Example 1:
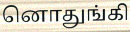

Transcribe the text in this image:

னொதுங்கி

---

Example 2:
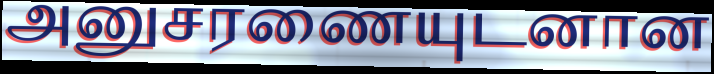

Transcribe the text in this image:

அனுசரணையுடனான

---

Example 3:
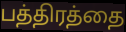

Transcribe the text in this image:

பத்திரத்தை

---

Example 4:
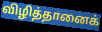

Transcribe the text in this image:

விழித்தானைக்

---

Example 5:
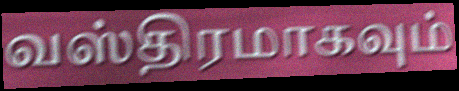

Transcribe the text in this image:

வஸ்திரமாகவும்